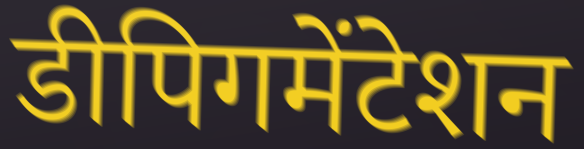
डीपिगमेंटेशन